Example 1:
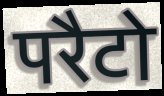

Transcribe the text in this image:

परैटो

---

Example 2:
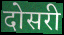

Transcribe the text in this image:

दोसरी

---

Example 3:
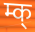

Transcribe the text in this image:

म्क्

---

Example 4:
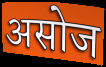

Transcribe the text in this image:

असोज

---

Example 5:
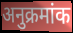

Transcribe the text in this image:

अनुक्रमांक